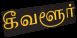
கீவளூர்